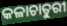
କଳାଚାତୁରୀ